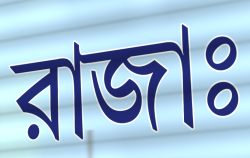
রাজাঃ